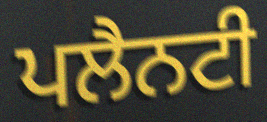
ਪਲੈਨਟੀ